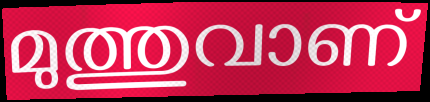
മുത്തുവാണ്